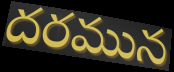
దరమున